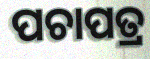
ପଚାପତ୍ର